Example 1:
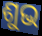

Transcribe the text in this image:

ଶୁଭ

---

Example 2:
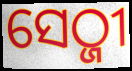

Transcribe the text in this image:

ସେଠ୍ଜୀ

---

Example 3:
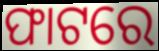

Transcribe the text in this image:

ଫାଟରେ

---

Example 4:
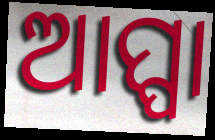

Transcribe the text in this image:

ଆପ୍ପା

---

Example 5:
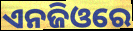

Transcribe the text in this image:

ଏନଜିଓରେ